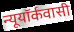
न्यूयॉर्कवासी